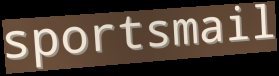
sportsmail